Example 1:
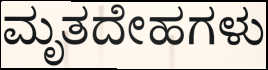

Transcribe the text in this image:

ಮೃತದೇಹಗಳು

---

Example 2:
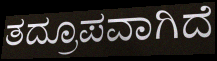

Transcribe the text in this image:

ತದ್ರೂಪವಾಗಿದೆ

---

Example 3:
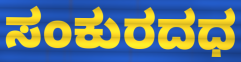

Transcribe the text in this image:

ಸಂಕುರದಧ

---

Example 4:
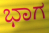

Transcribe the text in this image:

ಭಾಗ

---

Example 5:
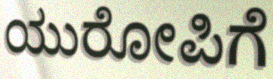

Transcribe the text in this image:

ಯುರೋಪಿಗೆ